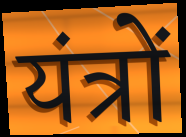
यंत्रों